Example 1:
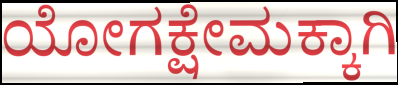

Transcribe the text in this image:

ಯೋಗಕ್ಷೇಮಕ್ಕಾಗಿ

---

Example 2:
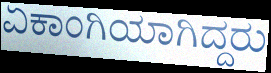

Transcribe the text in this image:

ಏಕಾಂಗಿಯಾಗಿದ್ದರು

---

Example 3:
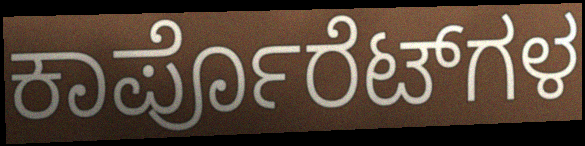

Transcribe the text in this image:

ಕಾರ್ಪೊರೆಟ್‌ಗಳ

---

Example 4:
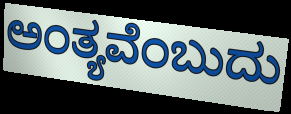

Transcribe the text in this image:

ಅಂತ್ಯವೆಂಬುದು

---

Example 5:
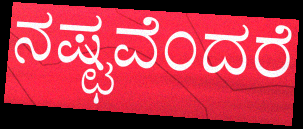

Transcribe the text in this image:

ನಷ್ಟವೆಂದರೆ